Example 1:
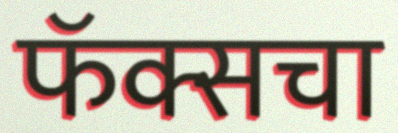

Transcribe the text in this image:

फॅक्सचा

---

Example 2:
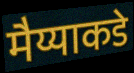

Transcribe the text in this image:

मैय्याकडे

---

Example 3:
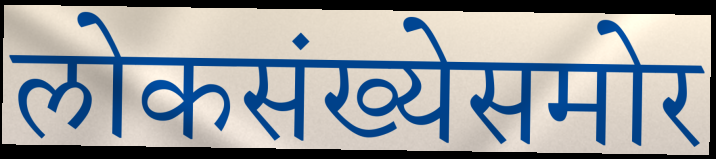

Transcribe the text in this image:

लोकसंख्येसमोर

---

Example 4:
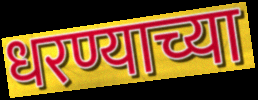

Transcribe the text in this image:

धरण्याच्या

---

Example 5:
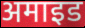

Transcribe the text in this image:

अमाइड